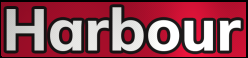
Harbour